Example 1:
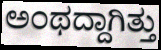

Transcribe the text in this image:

ಅಂಥದ್ದಾಗಿತ್ತು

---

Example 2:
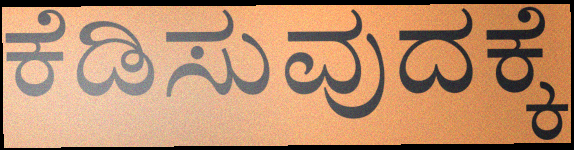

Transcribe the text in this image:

ಕೆಡಿಸುವುದಕ್ಕೆ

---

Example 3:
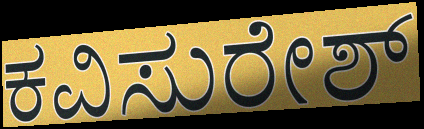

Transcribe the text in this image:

ಕವಿಸುರೇಶ್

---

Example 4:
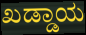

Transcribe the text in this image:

ಖಡ್ಡಾಯ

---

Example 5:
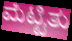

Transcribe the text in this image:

ಮೆಟ್ಟಿತು